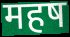
महष